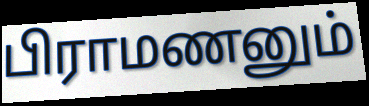
பிராமணனும்